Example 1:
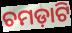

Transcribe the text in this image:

ଚମଡ଼ାଟି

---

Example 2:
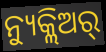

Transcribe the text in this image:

ନ୍ୟୁକ୍ଲିଅର୍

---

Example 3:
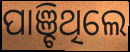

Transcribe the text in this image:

ପାଞ୍ଚିଥିଲେ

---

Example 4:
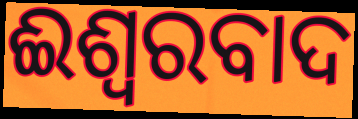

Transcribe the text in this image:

ଈଶ୍ବରବାଦ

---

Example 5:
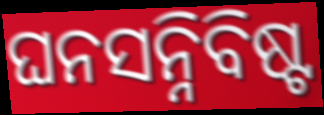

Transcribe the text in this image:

ଘନସନ୍ନିବିଷ୍ଟ